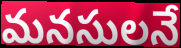
మనసులనే